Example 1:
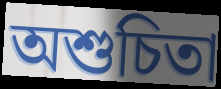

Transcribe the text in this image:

অশুচিতা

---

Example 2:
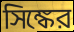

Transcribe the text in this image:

সিঙ্কের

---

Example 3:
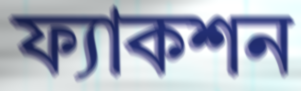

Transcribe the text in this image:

ফ্যাকশন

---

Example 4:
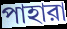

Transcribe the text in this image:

পাহারা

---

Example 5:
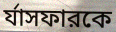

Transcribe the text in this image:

র্যাসফারকে